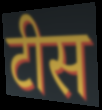
टीस